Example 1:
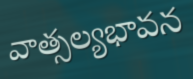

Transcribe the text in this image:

వాత్సల్యభావన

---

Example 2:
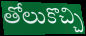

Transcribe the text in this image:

తోలుకొచ్చి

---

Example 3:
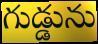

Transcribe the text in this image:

గుడ్డును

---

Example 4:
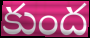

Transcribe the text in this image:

కుంద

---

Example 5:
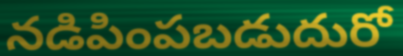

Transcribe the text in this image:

నడిపింపబడుదురో